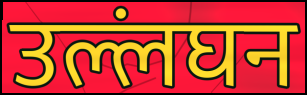
उल्लंघन